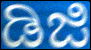
ಡಿಜಿ